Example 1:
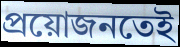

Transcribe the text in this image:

প্ৰয়োজনতেই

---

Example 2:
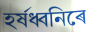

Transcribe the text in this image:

হৰ্ষধ্বনিৰে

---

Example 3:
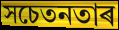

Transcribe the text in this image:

সচেতনতাৰ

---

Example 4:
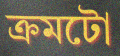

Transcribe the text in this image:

ক্ৰমটো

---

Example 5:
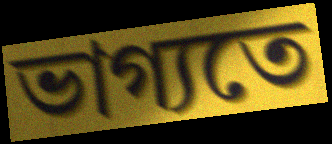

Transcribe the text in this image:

ভাগ্যতে